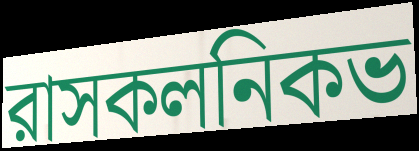
রাসকলনিকভ